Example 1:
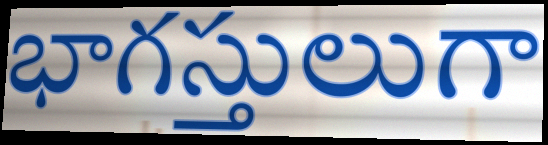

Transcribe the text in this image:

భాగస్తులుగా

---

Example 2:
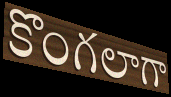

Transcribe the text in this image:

కొంగలాగా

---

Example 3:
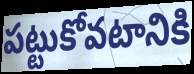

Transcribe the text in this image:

పట్టుకోవటానికి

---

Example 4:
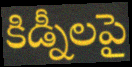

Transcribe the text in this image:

కిడ్నీలపై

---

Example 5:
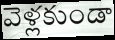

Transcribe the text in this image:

వెళ్లకుండా